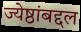
ज्येष्ठांबद्दल